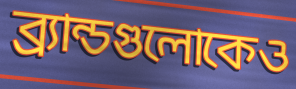
ব্র্যান্ডগুলোকেও